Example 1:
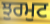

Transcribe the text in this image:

ਝੁਰਮੁਟ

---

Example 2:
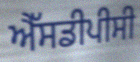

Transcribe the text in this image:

ਐੱਸਡੀਪੀਸੀ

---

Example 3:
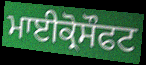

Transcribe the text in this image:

ਮਾਈਕ੍ਰੋਸੌਫਟ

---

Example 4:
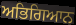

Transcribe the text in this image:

ਅਭਿਗਿਆਨ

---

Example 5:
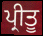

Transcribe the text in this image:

ਪ੍ਰੀਤੂ